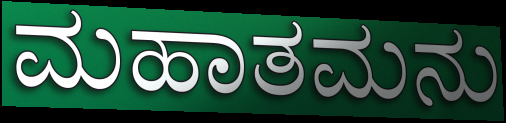
ಮಹಾತಮನು